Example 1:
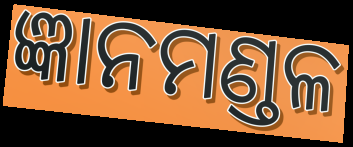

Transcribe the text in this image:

ଜ୍ଞାନମଣ୍ଡଳ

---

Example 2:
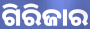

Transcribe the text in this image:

ଗିରିଜାର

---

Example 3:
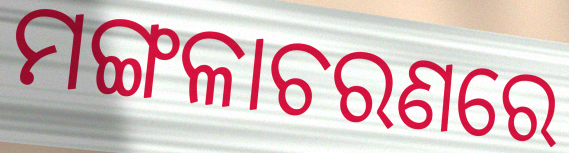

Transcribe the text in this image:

ମଙ୍ଗଳାଚରଣରେ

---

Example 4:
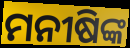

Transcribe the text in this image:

ମନୀଷିଙ୍କ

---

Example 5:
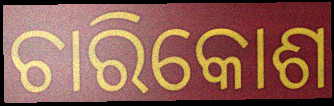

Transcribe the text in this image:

ଚାରିକୋଶ